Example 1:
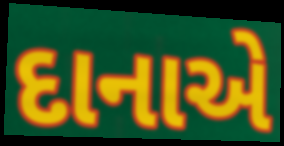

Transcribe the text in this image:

દાનાએ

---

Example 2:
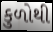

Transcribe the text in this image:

કુળોથી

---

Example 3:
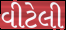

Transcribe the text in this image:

વીટેલી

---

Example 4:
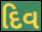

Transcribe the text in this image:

દિવ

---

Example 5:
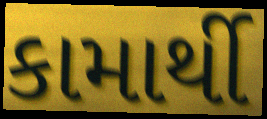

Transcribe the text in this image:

કામાર્થી